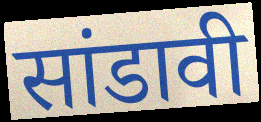
सांडावी